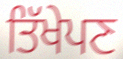
ਤਿੱਖੇਪਣ